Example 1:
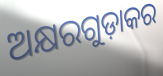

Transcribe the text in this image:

ଅକ୍ଷରଗୁଡ଼ାକର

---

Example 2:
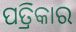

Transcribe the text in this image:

ପତ୍ରିକାର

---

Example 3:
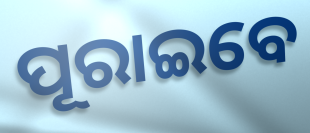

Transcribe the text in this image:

ପୂରାଇବେ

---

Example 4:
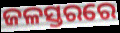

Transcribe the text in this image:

ଜଳସ୍ତରରେ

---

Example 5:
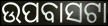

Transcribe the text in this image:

ଉପବାସଟା